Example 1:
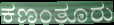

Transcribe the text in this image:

ಕಣಂತೂರು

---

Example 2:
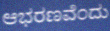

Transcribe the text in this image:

ಆಭರಣವೆಂದು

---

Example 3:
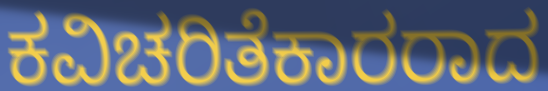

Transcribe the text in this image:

ಕವಿಚರಿತೆಕಾರರಾದ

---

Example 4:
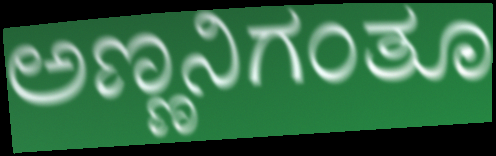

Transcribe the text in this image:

ಅಣ್ಣನಿಗಂತೂ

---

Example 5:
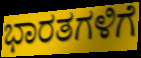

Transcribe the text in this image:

ಭಾರತಗಳಿಗೆ